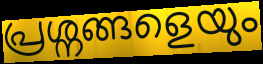
പ്രശ്നങ്ങളെയും